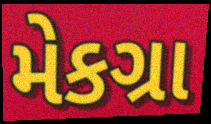
મેકગ્રા